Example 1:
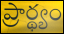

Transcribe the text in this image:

ప్రార్థ్యం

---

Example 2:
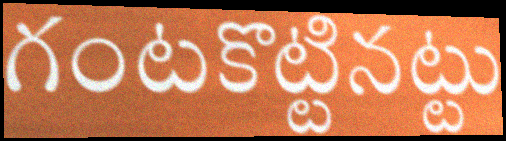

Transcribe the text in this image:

గంటకొట్టినట్టు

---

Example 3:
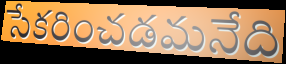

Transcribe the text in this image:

సేకరించడమనేది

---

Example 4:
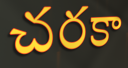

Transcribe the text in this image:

చరకా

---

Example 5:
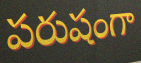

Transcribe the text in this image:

పరుషంగా